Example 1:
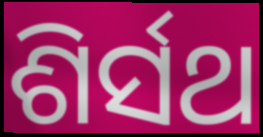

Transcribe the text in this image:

ଶିର୍ସଥ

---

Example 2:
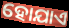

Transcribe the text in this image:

ହୋଯାଏ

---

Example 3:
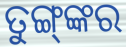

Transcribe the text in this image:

ତୁଙ୍ଗ୍‍ଙ୍କର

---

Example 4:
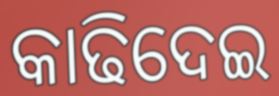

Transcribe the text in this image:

କାଢିଦେଇ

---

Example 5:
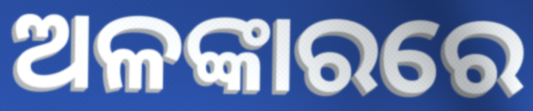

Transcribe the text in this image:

ଅଳଙ୍କାରରେ